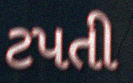
ટપતી